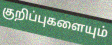
குறிப்புகளையும்